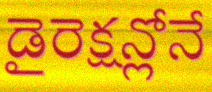
డైరెక్షన్లోనే